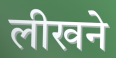
लीखने